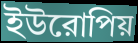
ইউরোপিয়